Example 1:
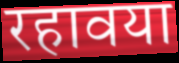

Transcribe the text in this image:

रहावया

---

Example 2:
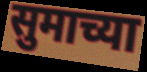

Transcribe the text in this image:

सुमाच्या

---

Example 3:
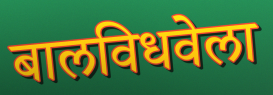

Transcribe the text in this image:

बालविधवेला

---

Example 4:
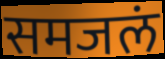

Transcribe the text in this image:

समजलं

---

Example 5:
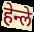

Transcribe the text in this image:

हेन्ले